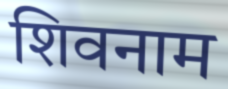
शिवनाम